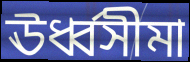
ঊর্ধ্বসীমা